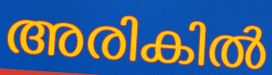
അരികിൽ